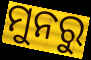
ମୁନରୁ